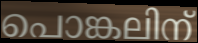
പൊങ്കലിന്